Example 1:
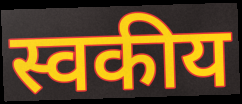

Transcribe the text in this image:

स्वकीय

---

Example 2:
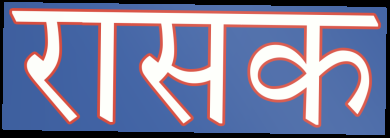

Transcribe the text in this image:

रासक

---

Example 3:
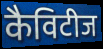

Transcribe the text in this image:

कैविटीज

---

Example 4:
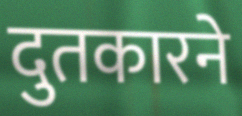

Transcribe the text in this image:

दुतकारने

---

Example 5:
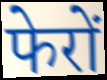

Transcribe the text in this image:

फेरों